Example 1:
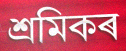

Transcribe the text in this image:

শ্ৰমিকৰ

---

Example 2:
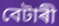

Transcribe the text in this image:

বেটাৰী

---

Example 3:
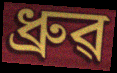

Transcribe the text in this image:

ধ্ৰুৱ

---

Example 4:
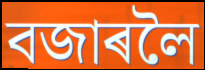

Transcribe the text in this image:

বজাৰলৈ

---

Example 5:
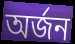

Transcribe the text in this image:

অৰ্জন